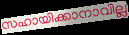
സഹായിക്കാനാവില്ല